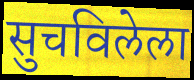
सुचविलेला